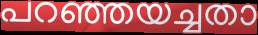
പറഞ്ഞയച്ചതാ